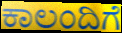
ಕಾಲಂದಿಗೆ